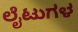
ಲೈಟುಗಳ